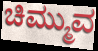
ಚಿಮ್ಮುವ